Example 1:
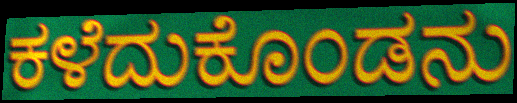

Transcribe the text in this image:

ಕಳೆದುಕೊಂಡನು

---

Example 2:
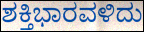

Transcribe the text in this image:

ಶಕ್ತಿಭಾರವಳಿದು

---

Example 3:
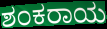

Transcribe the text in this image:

ಶಂಕರಾಯ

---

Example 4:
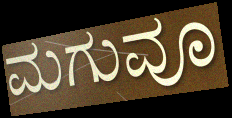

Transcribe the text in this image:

ಮಗುವೂ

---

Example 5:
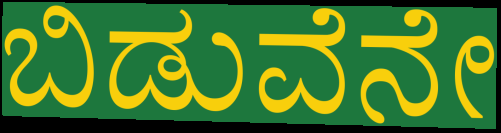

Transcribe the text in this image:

ಬಿಡುವೆನೇ